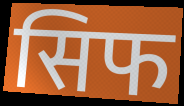
सिफ